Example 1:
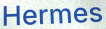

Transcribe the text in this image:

Hermes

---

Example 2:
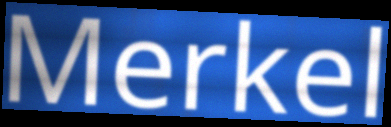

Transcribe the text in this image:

Merkel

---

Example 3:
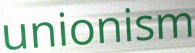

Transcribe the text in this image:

unionism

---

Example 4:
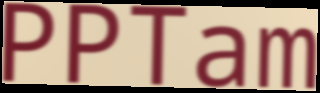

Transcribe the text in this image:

PPTam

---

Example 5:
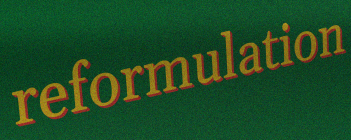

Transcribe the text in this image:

reformulation